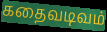
கதைவடிவம்